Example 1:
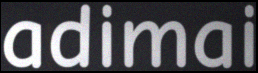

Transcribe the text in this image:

adimai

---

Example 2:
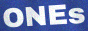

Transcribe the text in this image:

ONEs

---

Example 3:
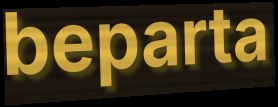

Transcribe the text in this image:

beparta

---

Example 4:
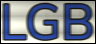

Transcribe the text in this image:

LGB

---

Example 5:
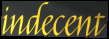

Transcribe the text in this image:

indecent